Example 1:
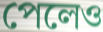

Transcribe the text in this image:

পেলেও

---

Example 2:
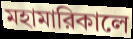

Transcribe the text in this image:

মহামারিকালে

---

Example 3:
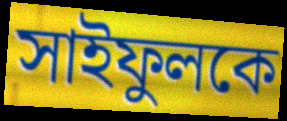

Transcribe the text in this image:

সাইফুলকে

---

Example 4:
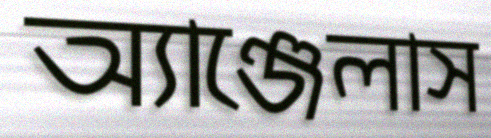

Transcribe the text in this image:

অ্যাঞ্জেলাস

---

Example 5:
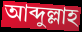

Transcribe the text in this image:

আব্দুল্লাহ